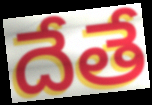
దేతే